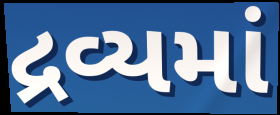
દ્રવ્યમાં